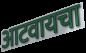
आटवायचा